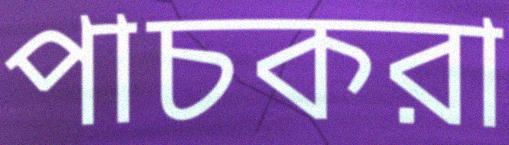
পাচকরা